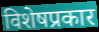
विशेषप्रकार